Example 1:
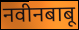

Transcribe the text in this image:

नवीनबाबू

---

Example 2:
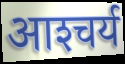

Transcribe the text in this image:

आश्‍चर्य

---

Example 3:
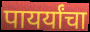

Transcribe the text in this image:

पायर्यांचा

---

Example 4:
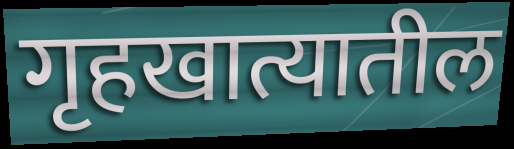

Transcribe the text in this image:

गृहखात्यातील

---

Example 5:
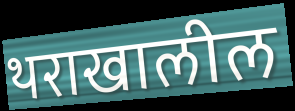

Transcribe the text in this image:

थराखालील